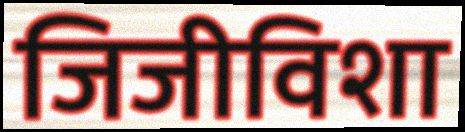
जिजीविशा